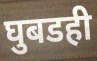
घुबडही